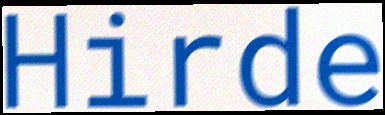
Hirde